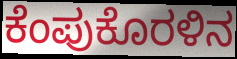
ಕೆಂಪುಕೊರಳಿನ